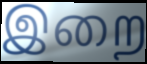
இறை